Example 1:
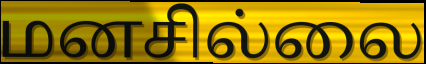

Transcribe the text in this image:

மனசில்லை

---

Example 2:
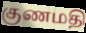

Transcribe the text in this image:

குணமதி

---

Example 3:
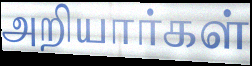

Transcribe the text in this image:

அறியார்கள்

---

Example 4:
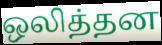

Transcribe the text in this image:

ஒலித்தன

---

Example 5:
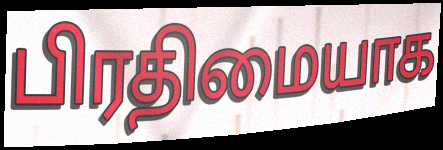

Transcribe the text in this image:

பிரதிமையாக